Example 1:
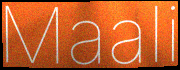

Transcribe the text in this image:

Maali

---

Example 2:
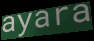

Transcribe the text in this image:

ayara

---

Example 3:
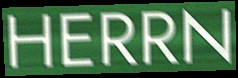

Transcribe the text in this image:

HERRN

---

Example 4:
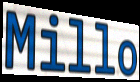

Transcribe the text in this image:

Millo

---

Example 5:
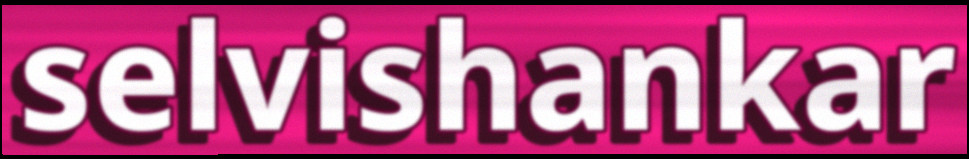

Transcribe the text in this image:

selvishankar